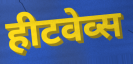
हीटवेव्स